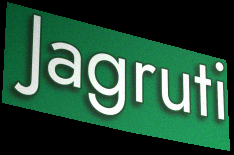
Jagruti